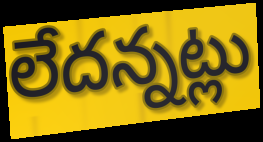
లేదన్నట్లు